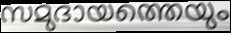
സമുദായത്തെയും